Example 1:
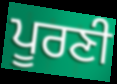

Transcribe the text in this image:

ਪੂਰਣੀ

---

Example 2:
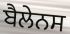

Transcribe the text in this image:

ਬੈਲੇਨਸ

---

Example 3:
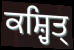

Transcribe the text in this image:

ਕਸ਼੍ਚਿਤ੍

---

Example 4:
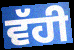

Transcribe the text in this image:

ਵੱਹੀ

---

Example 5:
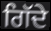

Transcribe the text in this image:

ਗਿੱਦੇ